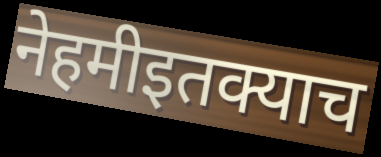
नेहमीइतक्याच